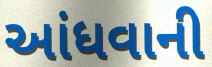
આંધવાની